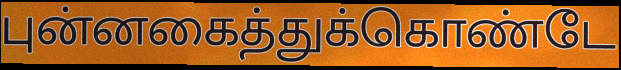
புன்னகைத்துக்கொண்டே